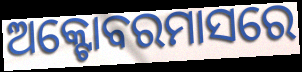
ଅକ୍ଟୋବରମାସରେ